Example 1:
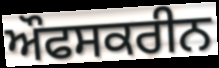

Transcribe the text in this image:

ਔਫਸਕਰੀਨ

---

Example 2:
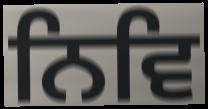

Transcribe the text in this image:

ਨਿਵਿ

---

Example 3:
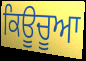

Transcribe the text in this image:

ਕਿਊਚੂਆ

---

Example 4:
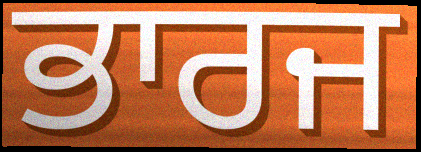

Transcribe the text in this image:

ਭਾਰਜ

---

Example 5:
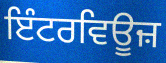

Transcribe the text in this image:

ਇੰਟਰਵਿਊਜ਼